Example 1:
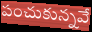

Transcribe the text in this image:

పంచుకున్నవే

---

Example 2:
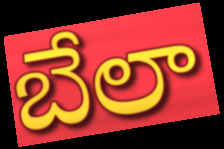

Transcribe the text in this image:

బేలా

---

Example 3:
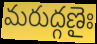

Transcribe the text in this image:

మరుద్గణైః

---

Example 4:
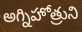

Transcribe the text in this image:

అగ్నిహోత్రుని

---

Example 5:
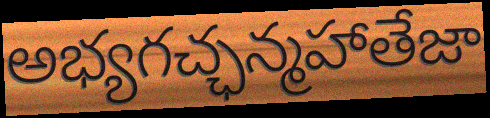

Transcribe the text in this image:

అభ్యగచ్ఛన్మహాతేజా